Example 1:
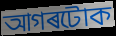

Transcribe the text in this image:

আগৰটোক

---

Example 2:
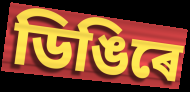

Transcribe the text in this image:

ডিঙিৰে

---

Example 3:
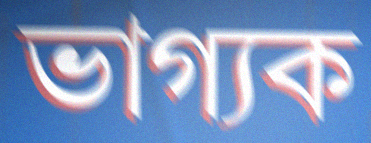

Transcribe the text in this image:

ভাগ্যক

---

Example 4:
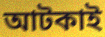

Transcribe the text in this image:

আটকাই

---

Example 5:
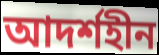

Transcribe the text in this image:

আদৰ্শহীন